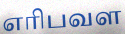
எரிபவள